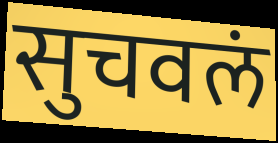
सुचवलं